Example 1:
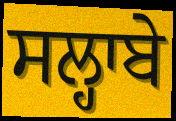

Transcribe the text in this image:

ਸਲ੍ਹਾਬੇ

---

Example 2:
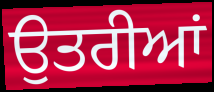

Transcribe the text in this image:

ਉਤਰੀਆਂ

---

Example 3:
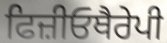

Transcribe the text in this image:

ਫਿਜ਼ੀਓਥੈਰੇਪੀ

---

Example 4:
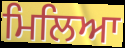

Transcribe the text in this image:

ਮਿਲਿਆ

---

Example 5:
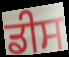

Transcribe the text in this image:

ਡੀਸ